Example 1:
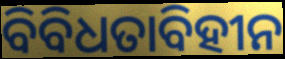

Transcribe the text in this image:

ବିବିଧତାବିହୀନ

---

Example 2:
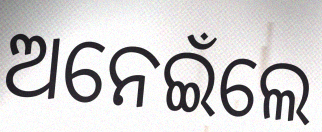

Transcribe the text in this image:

ଅନେଇଁଲେ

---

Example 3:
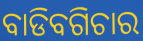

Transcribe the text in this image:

ବାଡିବଗିଚାର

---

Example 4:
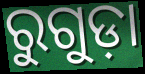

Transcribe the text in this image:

ରୁଗୁଡ଼ା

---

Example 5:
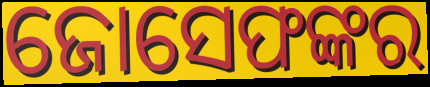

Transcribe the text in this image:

ଜୋସେଫଙ୍କର